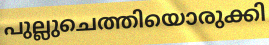
പുല്ലുചെത്തിയൊരുക്കി